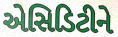
એસિડિટીને